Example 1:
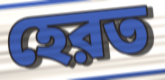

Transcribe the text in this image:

হেরত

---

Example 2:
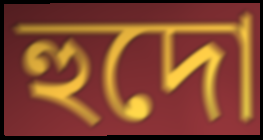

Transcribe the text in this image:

হুদো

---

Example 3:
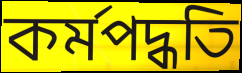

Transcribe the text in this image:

কর্মপদ্ধতি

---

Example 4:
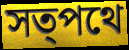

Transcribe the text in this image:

সত্পথে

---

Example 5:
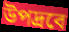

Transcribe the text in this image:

উপদ্রবে